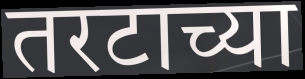
तरटाच्या